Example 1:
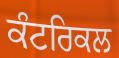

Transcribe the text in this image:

ਕੰਟਰਿਕਲ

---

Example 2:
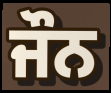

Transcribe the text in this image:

ਜੌਨ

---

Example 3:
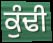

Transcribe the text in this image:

ਕੁੰਢੀ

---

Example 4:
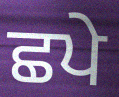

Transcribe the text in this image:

ਛਪੇ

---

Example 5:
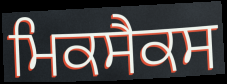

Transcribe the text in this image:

ਮਿਕਸੈਕਸ